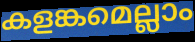
കളങ്കമെല്ലാം